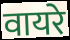
वायरे